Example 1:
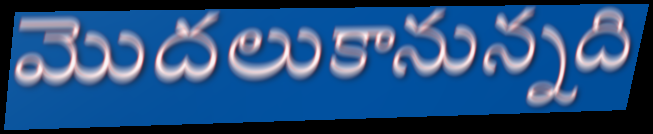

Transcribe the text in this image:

మొదలుకానున్నది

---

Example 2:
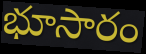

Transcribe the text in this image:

భూసారం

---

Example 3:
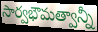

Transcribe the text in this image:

సార్వభౌమత్వాన్నీ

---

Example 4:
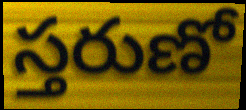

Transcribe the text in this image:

స్తరుణో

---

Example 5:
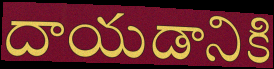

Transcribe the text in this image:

దాయడానికి